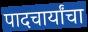
पादचार्यांचा